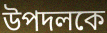
উপদলকে